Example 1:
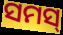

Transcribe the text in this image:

ସମସ୍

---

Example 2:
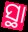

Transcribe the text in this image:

ସ୍ଥା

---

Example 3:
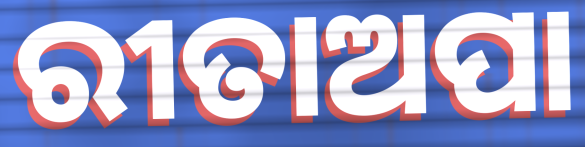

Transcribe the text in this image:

ରୀତାଅପା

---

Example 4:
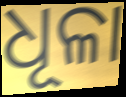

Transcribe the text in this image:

ଧୂଳା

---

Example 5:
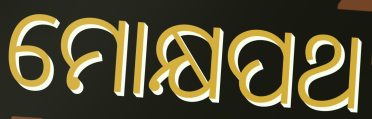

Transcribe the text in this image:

ମୋକ୍ଷପଥ